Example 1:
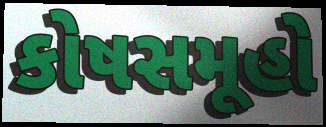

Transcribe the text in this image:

કોષસમૂહો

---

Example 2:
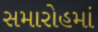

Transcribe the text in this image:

સમારોહમાં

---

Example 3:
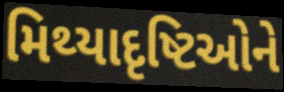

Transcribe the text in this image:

મિથ્યાદૃષ્ટિઓને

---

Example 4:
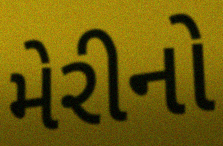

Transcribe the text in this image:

મેરીનો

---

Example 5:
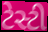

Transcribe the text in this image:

ટેસ્ટી